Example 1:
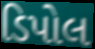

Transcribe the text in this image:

ડિપોલ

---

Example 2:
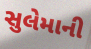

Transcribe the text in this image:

સુલેમાની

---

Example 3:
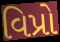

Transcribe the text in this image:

વિપ્રો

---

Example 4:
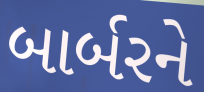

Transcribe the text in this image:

બાર્બરને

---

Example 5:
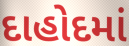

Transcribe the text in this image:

દાહોદમાં